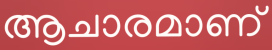
ആചാരമാണ്